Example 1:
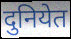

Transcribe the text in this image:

दुनियेत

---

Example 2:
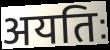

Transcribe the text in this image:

अयतिः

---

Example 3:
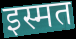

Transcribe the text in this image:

इस्मत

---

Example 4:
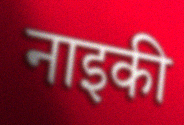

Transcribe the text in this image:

नाइकी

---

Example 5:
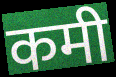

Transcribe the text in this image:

कमी